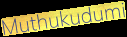
Muthukudumi